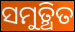
ସମୁତ୍ଥିତ